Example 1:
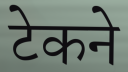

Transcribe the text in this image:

टेकने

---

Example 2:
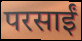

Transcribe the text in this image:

परसाईं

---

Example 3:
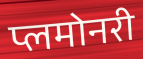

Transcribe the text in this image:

प्लमोनरी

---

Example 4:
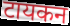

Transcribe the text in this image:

टायकन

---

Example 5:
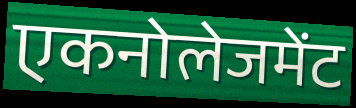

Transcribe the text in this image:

एकनोलेजमेंट